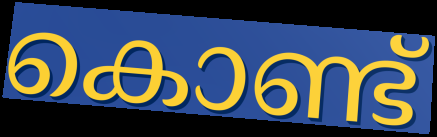
കൊണ്ട്